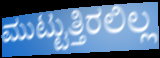
ಮುಟ್ಟುತ್ತಿರಲಿಲ್ಲ